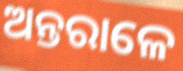
ଅନ୍ତରାଳେ